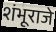
शंभूराजे